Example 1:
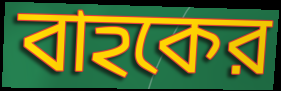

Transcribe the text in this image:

বাহকের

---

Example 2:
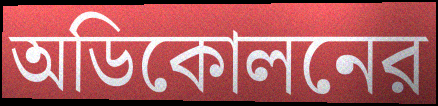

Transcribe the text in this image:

অডিকোলনের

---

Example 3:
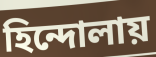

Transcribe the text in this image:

হিন্দোলায়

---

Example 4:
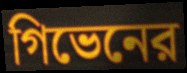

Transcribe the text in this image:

গিভেনের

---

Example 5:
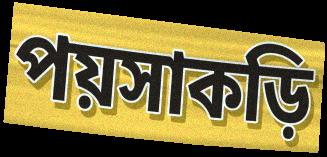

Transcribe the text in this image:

পয়সাকড়ি